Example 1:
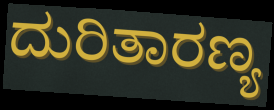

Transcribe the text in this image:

ದುರಿತಾರಣ್ಯ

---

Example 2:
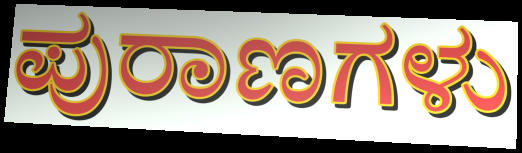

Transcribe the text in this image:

ಪುರಾಣಗಳು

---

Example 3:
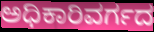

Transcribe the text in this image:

ಅಧಿಕಾರಿವರ್ಗದ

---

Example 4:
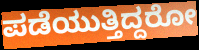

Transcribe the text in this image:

ಪಡೆಯುತ್ತಿದ್ದರೋ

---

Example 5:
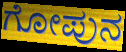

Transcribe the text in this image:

ಗೋಪುನ